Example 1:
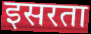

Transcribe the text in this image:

इसरता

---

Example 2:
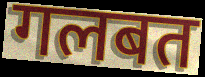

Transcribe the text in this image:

गलबत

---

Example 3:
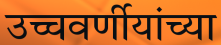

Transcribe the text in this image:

उच्चवर्णीयांच्या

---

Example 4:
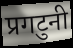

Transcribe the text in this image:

प्रगटुनी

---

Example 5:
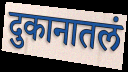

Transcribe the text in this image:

दुकानातलं